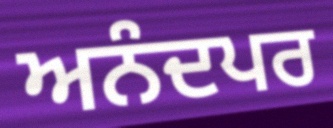
ਅਨੰਦਪਰ